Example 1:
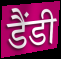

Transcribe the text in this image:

डैंडी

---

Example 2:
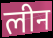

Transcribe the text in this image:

लीन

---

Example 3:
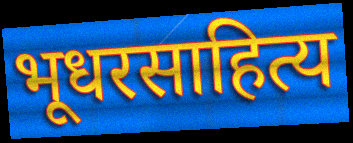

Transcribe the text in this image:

भूधरसाहित्य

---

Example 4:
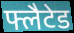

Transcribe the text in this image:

फ्लैटेड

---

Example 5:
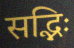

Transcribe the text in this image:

सद्भिः